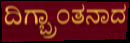
ದಿಗ್ಬ್ರಾಂತನಾದ